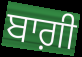
ਬਾਗ਼ੀ